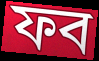
ফব